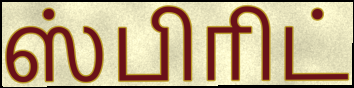
ஸ்பிரிட்